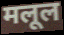
मलूल